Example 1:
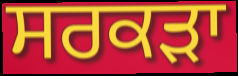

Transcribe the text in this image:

ਸਰਕੜਾ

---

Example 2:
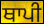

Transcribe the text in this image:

ਥਾਪੀ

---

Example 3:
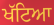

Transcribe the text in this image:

ਖੱਟਿਆ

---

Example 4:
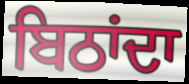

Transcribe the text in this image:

ਬਿਠਾਂਦਾ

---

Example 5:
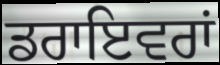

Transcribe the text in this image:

ਡਰਾਇਵਰਾਂ